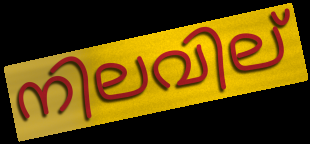
നിലവില്